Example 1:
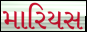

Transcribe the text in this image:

મારિયસ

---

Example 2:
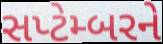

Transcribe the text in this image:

સપ્ટેમ્બરને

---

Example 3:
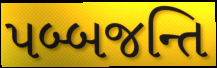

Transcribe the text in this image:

પબ્બજન્તિ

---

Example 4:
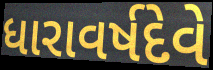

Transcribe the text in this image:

ધારાવર્ષદેવે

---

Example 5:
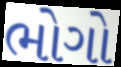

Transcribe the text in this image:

ભોગો